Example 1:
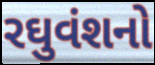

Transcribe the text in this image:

રઘુવંશનો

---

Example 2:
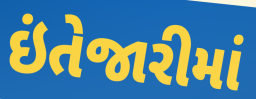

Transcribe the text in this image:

ઇંતેજારીમાં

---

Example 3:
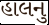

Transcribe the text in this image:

હાલનુ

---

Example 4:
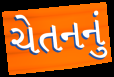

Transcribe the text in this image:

ચેતનનું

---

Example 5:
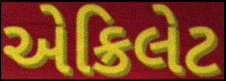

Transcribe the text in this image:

એક્રિલેટ